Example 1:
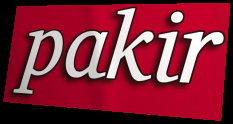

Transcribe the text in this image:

pakir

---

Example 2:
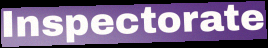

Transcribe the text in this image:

Inspectorate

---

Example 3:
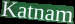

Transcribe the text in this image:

Katnam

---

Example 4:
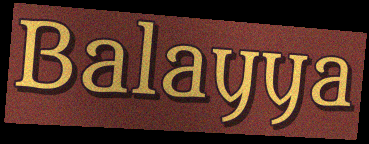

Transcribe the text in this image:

Balayya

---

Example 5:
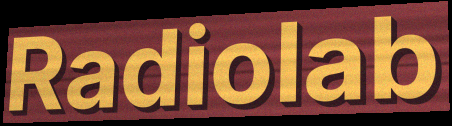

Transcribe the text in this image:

Radiolab